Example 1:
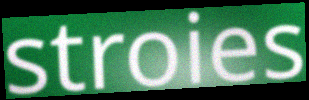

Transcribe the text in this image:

stroies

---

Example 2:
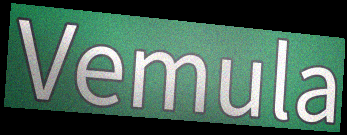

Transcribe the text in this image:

Vemula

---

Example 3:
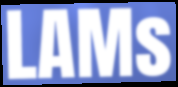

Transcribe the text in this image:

LAMs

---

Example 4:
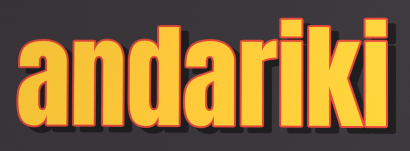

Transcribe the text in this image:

andariki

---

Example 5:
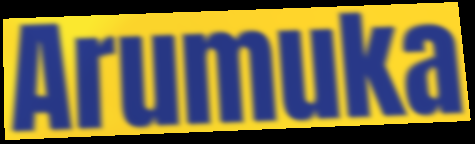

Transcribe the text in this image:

Arumuka